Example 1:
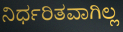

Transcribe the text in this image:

ನಿರ್ಧರಿತವಾಗಿಲ್ಲ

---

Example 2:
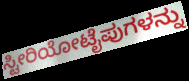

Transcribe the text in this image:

ಸ್ಟೀರಿಯೋಟೈಪುಗಳನ್ನು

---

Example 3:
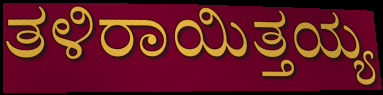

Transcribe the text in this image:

ತಳಿರಾಯಿತ್ತಯ್ಯ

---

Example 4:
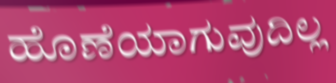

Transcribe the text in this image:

ಹೊಣೆಯಾಗುವುದಿಲ್ಲ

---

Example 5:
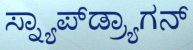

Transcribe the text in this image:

ಸ್ನ್ಯಾಪ್‌ಡ್ರ್ಯಾಗನ್